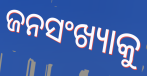
ଜନସଂଖ୍ୟାକୁ